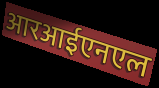
आरआईएनएल